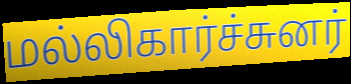
மல்லிகார்ச்சுனர்